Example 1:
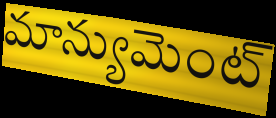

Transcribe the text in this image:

మాన్యుమెంట్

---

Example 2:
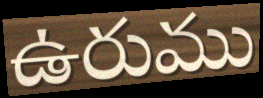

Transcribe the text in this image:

ఉరుము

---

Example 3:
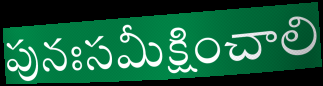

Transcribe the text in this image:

పునఃసమీక్షించాలి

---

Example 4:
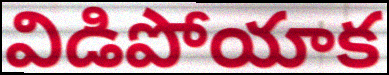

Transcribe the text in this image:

విడిపోయాక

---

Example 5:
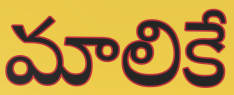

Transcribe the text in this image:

మాలికే